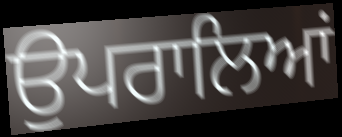
ਉਪਰਾਲਿਆਂ